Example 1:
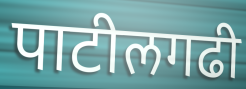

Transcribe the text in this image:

पाटीलगढी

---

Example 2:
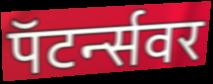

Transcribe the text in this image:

पॅटर्न्सवर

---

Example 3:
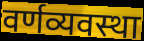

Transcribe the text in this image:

वर्णव्यवस्था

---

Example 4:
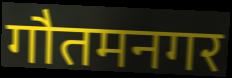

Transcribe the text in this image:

गौतमनगर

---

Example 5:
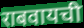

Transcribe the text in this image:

राबवायची